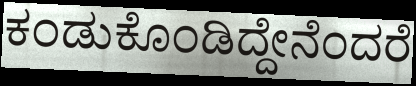
ಕಂಡುಕೊಂಡಿದ್ದೇನೆಂದರೆ